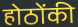
होठोंकी